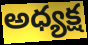
అధ్యక్ష